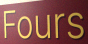
Fours